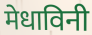
मेधाविनी